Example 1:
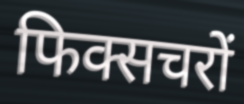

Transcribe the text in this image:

फिक्सचरों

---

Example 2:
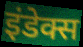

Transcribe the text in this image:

इंडेक्स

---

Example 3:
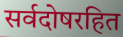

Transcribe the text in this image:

सर्वदोषरहित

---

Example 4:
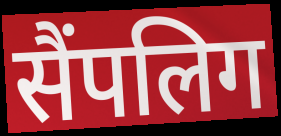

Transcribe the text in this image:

सैंपलिग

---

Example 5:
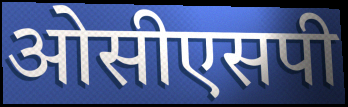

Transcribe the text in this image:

ओसीएसपी